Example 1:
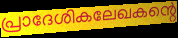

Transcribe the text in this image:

പ്രാദേശികലേഖകന്റെ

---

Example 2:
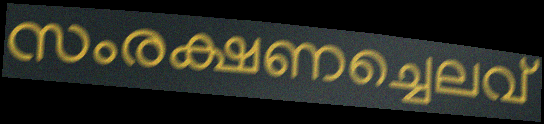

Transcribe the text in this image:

സംരക്ഷണച്ചെലവ്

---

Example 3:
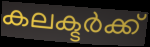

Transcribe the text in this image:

കലക്ടർക്ക്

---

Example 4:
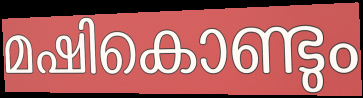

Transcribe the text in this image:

മഷികൊണ്ടും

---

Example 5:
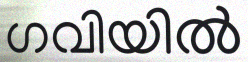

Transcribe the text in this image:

ഗവിയിൽ